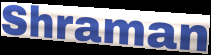
Shraman